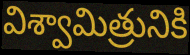
విశ్వామిత్రునికి